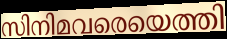
സിനിമവരെയെത്തി